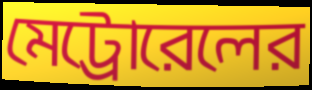
মেট্রোরেলের